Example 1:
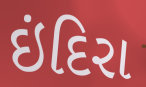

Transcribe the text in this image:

ઇંદિરા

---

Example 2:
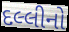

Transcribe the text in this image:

દલ્લીનો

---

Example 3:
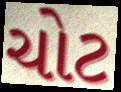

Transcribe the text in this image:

ચોટ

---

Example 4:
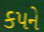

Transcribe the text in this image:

કપને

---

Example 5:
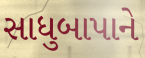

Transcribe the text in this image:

સાધુબાપાને